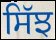
ਸਿੱਝ